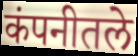
कंपनीतले